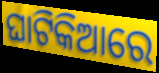
ଘାଟିକିଆରେ